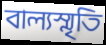
বাল্যস্মৃতি